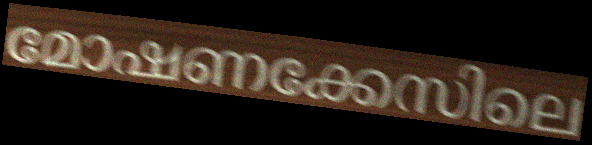
മോഷണക്കേസിലെ